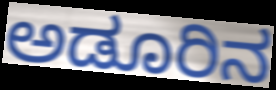
ಅಡೂರಿನ